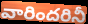
వారిందరినీ